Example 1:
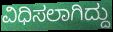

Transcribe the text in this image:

ವಿಧಿಸಲಾಗಿದ್ದು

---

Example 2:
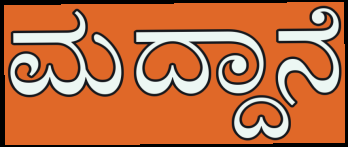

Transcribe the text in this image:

ಮದ್ದಾನೆ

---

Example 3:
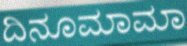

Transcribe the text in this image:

ದಿನೂಮಾಮಾ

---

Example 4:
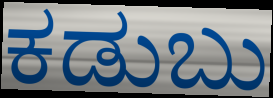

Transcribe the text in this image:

ಕಡುಬು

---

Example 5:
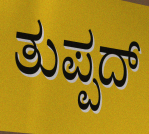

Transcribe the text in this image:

ತುಪ್ಪದ್